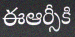
ఈఆర్సీకి